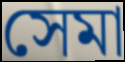
সেমা